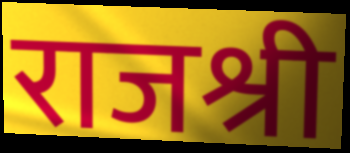
राजश्री